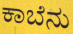
ಕಾಬೆನು